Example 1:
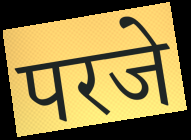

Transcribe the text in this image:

परजे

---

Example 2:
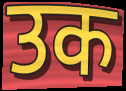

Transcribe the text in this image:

उक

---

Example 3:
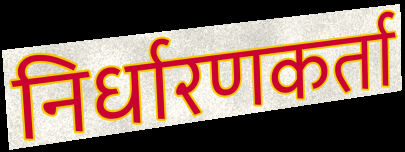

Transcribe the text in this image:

निर्धारणकर्ता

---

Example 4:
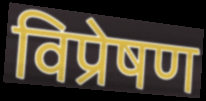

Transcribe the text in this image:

विप्रेषण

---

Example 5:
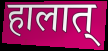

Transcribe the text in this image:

हालात्